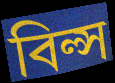
বিল্স